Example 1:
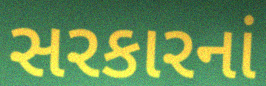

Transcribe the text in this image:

સરકારનાં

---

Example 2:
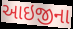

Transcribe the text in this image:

આઇજીના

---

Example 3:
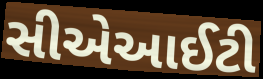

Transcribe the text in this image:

સીએઆઈટી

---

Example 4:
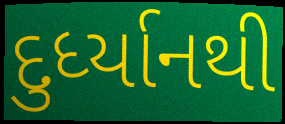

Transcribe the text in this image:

દુર્ધ્યાનથી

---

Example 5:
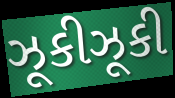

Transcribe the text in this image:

ઝૂકીઝૂકી